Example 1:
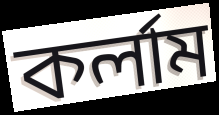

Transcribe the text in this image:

কর্লাম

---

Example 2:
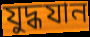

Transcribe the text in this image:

যুদ্ধযান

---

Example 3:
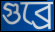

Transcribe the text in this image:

গুব্রে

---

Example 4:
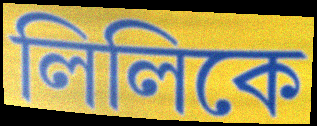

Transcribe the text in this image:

লিলিকে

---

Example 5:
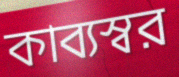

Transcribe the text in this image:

কাব্যস্বর